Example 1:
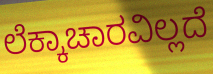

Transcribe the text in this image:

ಲೆಕ್ಕಾಚಾರವಿಲ್ಲದೆ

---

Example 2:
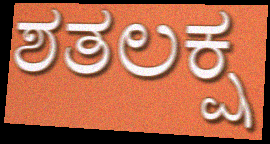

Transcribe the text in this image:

ಶತಲಕ್ಷ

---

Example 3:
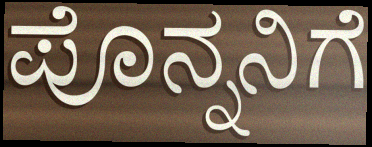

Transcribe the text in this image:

ಪೊನ್ನನಿಗೆ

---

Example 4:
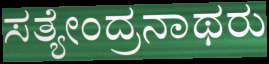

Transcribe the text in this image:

ಸತ್ಯೇಂದ್ರನಾಥರು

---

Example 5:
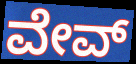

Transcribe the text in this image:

ವೇವ್